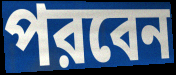
পরবেন